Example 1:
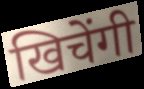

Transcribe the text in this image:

खिचेंगी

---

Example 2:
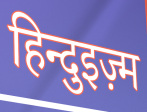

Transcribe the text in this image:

हिन्दुइज़्म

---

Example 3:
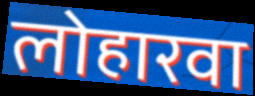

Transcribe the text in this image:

लोहारवा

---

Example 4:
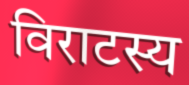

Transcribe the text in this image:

विराटस्य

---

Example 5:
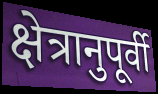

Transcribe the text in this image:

क्षेत्रानुपूर्वी